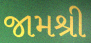
જામશ્રી